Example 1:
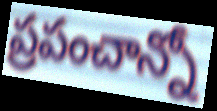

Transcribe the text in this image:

ప్రపంచాన్నో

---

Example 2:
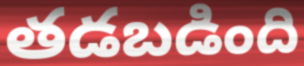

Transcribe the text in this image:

తడబడింది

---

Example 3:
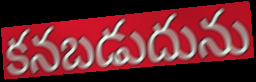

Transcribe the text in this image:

కనబడుదును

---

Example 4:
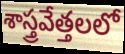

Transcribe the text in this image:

శాస్త్రవేత్తలలో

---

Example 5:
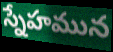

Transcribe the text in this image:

స్నేహమున